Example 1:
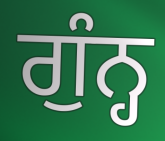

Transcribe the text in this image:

ਗੁੰਨ੍ਹ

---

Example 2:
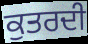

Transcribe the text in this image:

ਕੁਤਰਦੀ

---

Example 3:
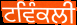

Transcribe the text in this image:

ਟਵਿੰਕਲੀ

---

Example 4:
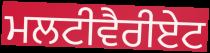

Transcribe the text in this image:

ਮਲਟੀਵੈਰੀਏਟ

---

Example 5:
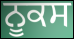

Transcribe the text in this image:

ਨੂਕਸ